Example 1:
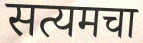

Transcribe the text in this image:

सत्यमचा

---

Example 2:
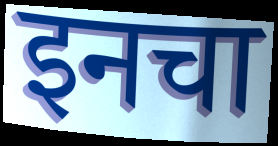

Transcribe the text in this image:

इनचा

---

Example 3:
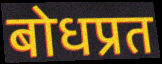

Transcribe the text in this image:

बोधप्रत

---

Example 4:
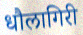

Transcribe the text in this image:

धौलागिरी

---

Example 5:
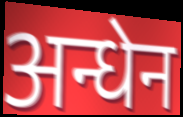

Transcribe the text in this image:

अन्धेन